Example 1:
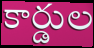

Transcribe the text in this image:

కార్డుల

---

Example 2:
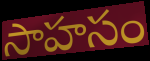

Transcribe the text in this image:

సాహసం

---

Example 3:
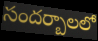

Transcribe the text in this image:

సందర్బాలలో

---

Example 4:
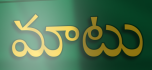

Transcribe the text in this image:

మాటు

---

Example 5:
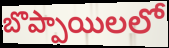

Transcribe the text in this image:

బొప్పాయిలలో